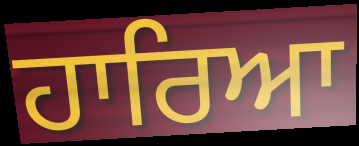
ਹਾਰਿਆ